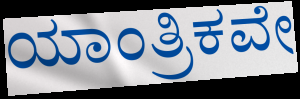
ಯಾಂತ್ರಿಕವೇ